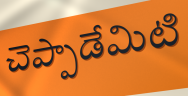
చెప్పాడేమిటి